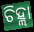
ଚିହ୍ଲା